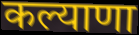
कल्याणा